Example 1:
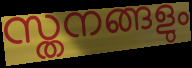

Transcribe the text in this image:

സ്തനങ്ങളും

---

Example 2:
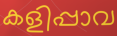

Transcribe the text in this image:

കളിപ്പാവ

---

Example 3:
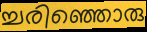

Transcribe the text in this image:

ച്ചരിഞ്ഞൊരു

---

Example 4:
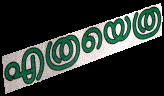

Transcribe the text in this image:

എത്രയെത്ര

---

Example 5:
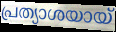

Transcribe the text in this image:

പ്രത്യാശയായ്